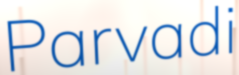
Parvadi